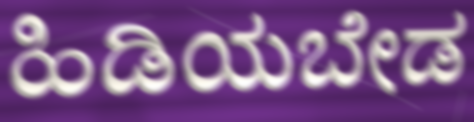
ಹಿಡಿಯಬೇಡ